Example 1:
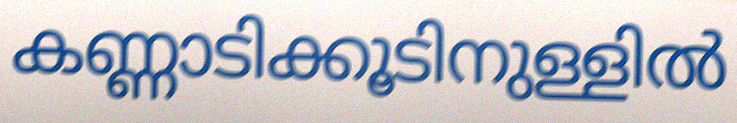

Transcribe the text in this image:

കണ്ണാടിക്കൂടിനുള്ളിൽ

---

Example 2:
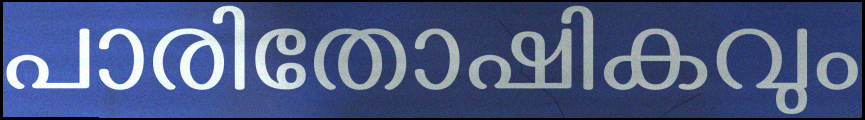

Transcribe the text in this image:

പാരിതോഷികവും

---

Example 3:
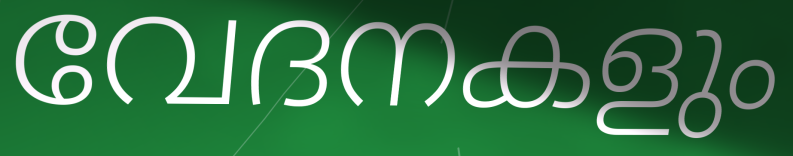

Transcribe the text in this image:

വേദനകളും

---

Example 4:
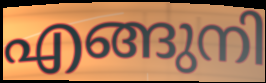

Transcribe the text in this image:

എങ്ങുനി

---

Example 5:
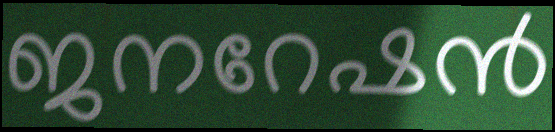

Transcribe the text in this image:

ജനറേഷൻ